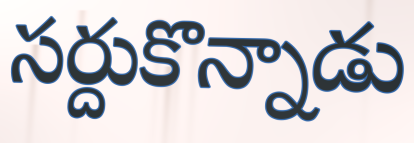
సర్దుకొన్నాడు